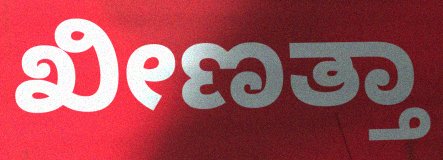
ಖೀಣತ್ತಾ